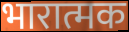
भारात्मक